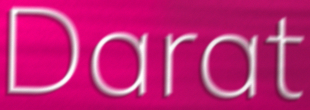
Darat